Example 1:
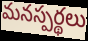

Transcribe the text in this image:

మనస్పర్థలు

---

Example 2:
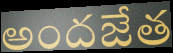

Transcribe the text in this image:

అందజేత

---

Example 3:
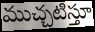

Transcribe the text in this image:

ముచ్చటిస్తూ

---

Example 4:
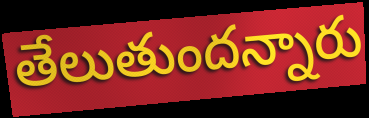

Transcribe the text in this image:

తేలుతుందన్నారు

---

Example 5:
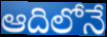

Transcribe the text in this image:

ఆదిలోనే